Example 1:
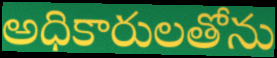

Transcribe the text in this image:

అధికారులతోను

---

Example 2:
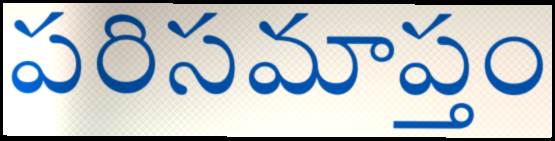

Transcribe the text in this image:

పరిసమాప్తం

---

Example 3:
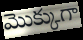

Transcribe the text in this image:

మొక్కుగా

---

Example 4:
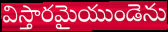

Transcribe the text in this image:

విస్తారమైయుండెను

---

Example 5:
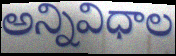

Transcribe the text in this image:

అన్నివిధాల